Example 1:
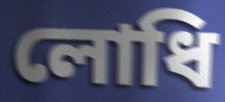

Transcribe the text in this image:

লোধি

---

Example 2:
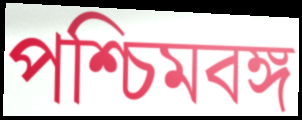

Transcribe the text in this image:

পশ্চিমবঙ্গ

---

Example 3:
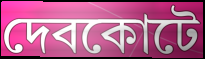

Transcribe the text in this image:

দেবকোটে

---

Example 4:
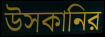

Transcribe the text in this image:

উসকানির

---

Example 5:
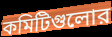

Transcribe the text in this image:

কমিটিগুলোর